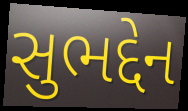
સુભદ્દેન